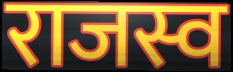
राजस्‍व